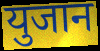
युजान